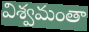
విశ్వమంతా